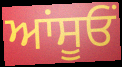
ਆਂਸੂਓਂ